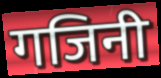
गजिनी